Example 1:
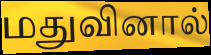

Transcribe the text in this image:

மதுவினால்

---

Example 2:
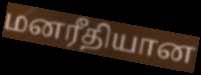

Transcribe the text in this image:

மனரீதியான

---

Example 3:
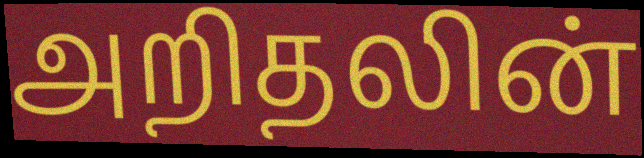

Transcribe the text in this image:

அறிதலின்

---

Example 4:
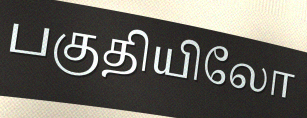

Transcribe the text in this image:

பகுதியிலோ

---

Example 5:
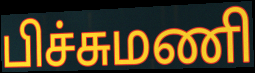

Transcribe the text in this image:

பிச்சுமணி